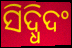
ସିଦ୍ଧିଦଂ